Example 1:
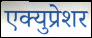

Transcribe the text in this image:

एक्युप्रेशर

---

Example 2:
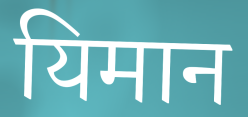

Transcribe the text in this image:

यिमान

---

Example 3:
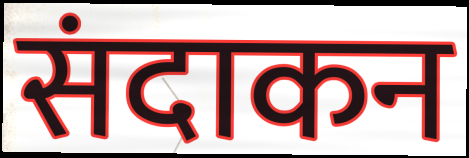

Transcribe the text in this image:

संदाकन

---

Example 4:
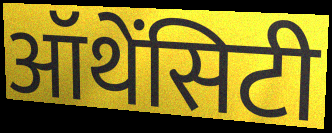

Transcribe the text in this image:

ऑथेंसिटी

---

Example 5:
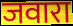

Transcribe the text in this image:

जवारा